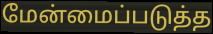
மேன்மைப்படுத்த